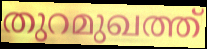
തുറമുഖത്ത്